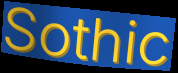
Sothic